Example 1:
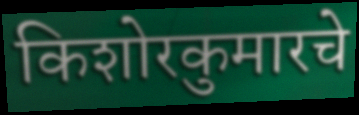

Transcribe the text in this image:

किशोरकुमारचे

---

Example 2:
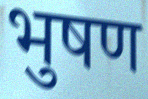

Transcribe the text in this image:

भुषण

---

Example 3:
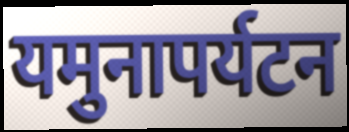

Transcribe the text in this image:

यमुनापर्यटन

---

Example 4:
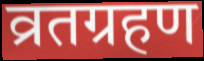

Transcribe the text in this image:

व्रतग्रहण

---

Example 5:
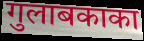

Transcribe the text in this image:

गुलाबकाका